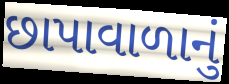
છાપાવાળાનું